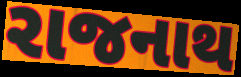
રાજનાથ